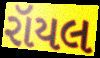
રૉયલ